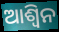
ଆଶ୍ୱିନ